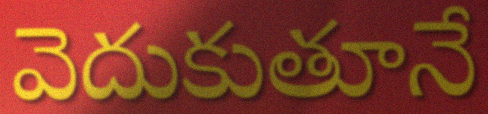
వెదుకుతూనే